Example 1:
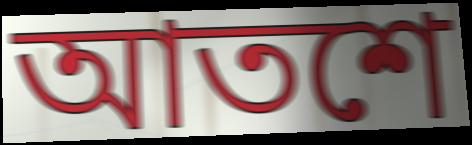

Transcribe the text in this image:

আতশে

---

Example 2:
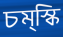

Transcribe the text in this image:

চম্‌স্কি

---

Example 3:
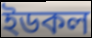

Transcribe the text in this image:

ইডকল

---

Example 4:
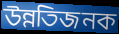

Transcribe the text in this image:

উন্নতিজনক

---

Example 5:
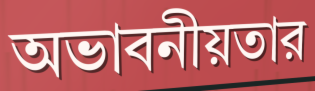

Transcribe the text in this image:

অভাবনীয়তার